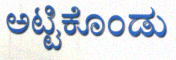
ಅಟ್ಟಿಕೊಂಡು